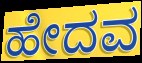
ಹೇದವ